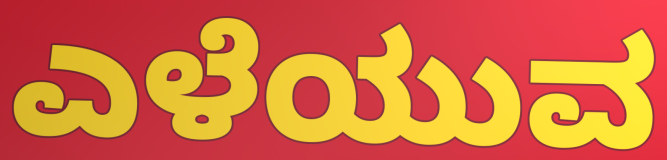
ಎಳೆಯುವ